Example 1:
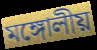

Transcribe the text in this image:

মঙ্গোলীয়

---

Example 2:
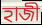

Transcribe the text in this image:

হাজী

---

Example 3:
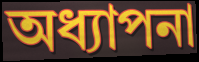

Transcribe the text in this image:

অধ্যাপনা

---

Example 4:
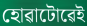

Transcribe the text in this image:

হোৱাটোৱেই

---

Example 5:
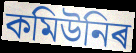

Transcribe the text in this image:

কমিউনিৰ